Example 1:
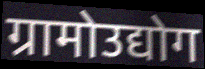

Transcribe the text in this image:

ग्रामोउद्योग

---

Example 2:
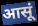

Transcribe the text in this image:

आसूं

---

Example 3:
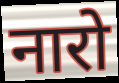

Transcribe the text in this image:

नारो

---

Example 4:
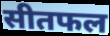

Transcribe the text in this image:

सीतफल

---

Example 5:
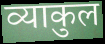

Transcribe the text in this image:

व्याकुल